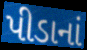
પીડાનાં